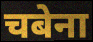
चबेना